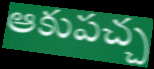
ఆకుపచ్చ